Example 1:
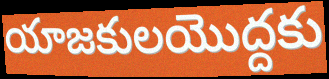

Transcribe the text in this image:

యాజకులయొద్దకు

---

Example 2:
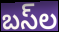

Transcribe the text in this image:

బస్‌ల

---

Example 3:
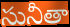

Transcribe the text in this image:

సునీతా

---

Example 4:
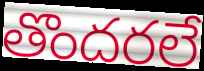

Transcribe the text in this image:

తొందరలే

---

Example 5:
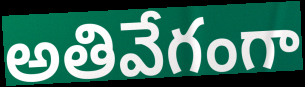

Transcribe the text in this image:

అతివేగంగా